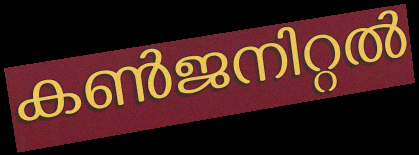
കൺജനിറ്റൽ